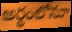
అర్థంలోనూ